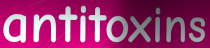
antitoxins